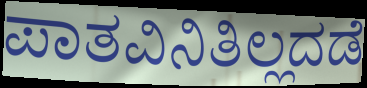
ಪಾತವಿನಿತಿಲ್ಲದಡೆ